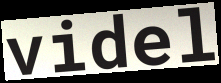
videl